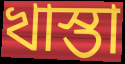
খাস্তা